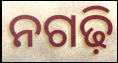
ନଗଢ଼ି